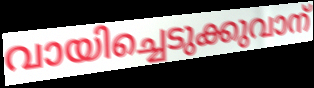
വായിച്ചെടുക്കുവാന്